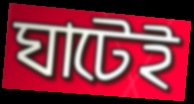
ঘাটেই